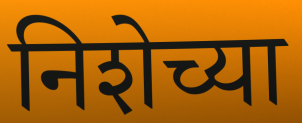
निशेच्या